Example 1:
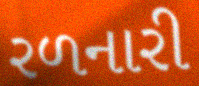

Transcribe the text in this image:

રળનારી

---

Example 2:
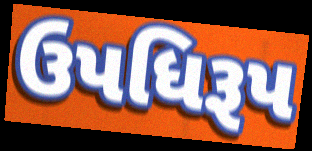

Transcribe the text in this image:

ઉપધિરૂપ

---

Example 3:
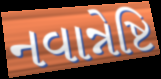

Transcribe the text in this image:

નવાન્નેષ્ટિ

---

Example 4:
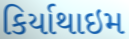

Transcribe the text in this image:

કિર્યાથાઇમ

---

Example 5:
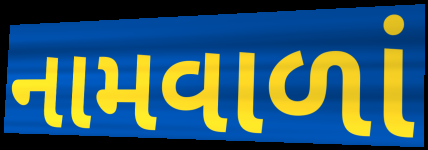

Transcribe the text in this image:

નામવાળાં